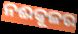
ନଈକୂଳର